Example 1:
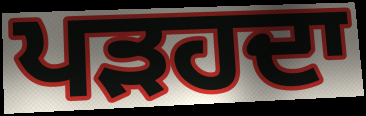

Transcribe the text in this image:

ਪੜਹਦਾ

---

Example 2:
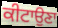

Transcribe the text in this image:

ਕੀਟਾਉਣਾ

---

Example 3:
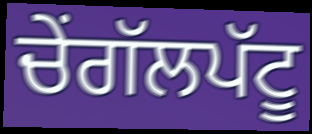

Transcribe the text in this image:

ਚੇਂਗੱਲਪੱਟੂ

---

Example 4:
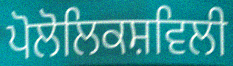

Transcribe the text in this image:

ਪੋਲੋਲਿਕਸ਼ਵਿਲੀ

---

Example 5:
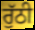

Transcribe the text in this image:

ਰੁੱਠੀ